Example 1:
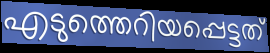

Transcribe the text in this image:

എടുത്തെറിയപ്പെട്ടത്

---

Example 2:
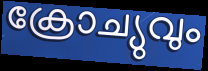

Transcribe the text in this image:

ക്രോച്യുവും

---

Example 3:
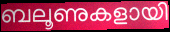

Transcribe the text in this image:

ബലൂണുകളായി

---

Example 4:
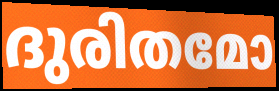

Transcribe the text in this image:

ദുരിതമോ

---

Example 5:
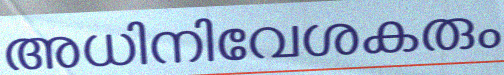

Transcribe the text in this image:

അധിനിവേശകരും